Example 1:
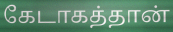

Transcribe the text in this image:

கேடாகத்தான்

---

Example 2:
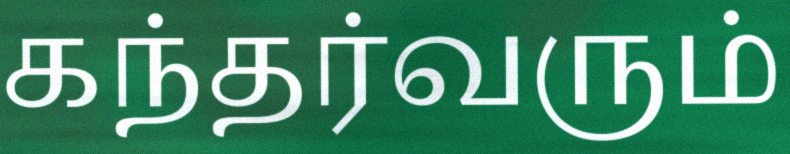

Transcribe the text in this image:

கந்தர்வரும்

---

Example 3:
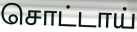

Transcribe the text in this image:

சொட்டாய்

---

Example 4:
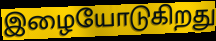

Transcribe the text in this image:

இழையோடுகிறது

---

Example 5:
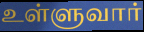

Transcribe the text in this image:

உள்ளுவார்